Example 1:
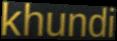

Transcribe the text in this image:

khundi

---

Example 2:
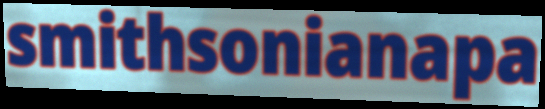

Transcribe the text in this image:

smithsonianapa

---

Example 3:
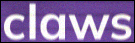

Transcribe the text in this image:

claws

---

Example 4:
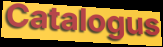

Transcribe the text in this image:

Catalogus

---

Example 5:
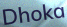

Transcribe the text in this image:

Dhoka